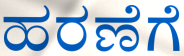
ಹರಣೆಗೆ